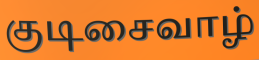
குடிசைவாழ்